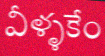
వీళ్ళకేం